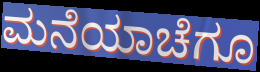
ಮನೆಯಾಚೆಗೂ